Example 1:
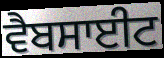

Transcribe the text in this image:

ਵੈਬਸਾਈਟ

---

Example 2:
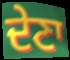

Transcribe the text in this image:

ਦੇਣਾ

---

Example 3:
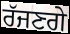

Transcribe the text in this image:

ਰੱਜਣਗੇ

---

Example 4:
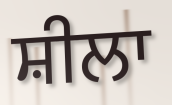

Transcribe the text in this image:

ਸ਼ੀਲਾ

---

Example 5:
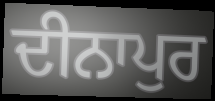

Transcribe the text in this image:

ਦੀਨਾਪੁਰ